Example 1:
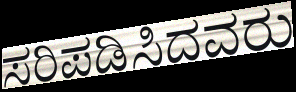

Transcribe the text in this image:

ಸರಿಪಡಿಸಿದವರು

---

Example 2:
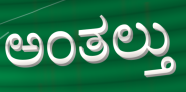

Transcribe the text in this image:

ಅಂತಲ್ತು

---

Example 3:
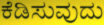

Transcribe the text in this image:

ಕೆಡಿಸುವುದು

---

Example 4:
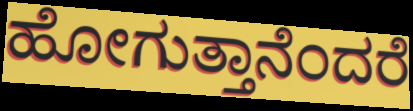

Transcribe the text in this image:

ಹೋಗುತ್ತಾನೆಂದರೆ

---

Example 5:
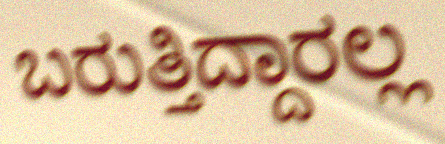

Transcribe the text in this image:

ಬರುತ್ತಿದ್ದಾರಲ್ಲ